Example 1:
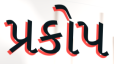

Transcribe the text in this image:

પ્રકોપ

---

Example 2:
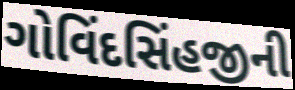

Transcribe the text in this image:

ગોવિંદસિંહજીની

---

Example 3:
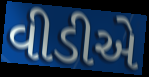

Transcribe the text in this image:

વીડીએ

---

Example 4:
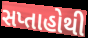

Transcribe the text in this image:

સપ્તાહોથી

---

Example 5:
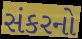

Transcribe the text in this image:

સંકરનો